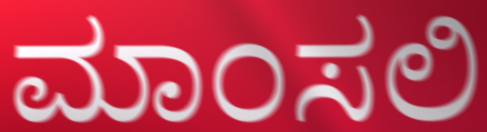
ಮಾಂಸಲಿ